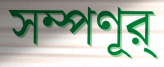
সম্পণূর্